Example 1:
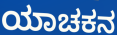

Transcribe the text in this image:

ಯಾಚಕನ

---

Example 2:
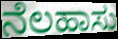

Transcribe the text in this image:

ನೆಲಹಾಸು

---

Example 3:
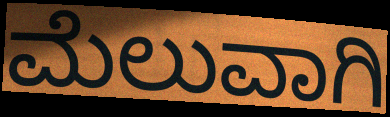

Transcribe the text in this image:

ಮೆಲುವಾಗಿ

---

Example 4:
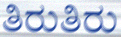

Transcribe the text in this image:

ತಿರುತಿರು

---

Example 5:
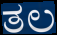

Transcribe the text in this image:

ತಲ